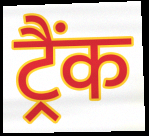
ट्रैंक